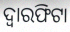
ଦ୍ୱାରଫିଟା